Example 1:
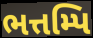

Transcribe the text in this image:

ભત્તમ્પિ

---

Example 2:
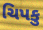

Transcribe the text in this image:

ચિપકુ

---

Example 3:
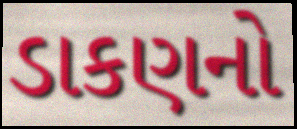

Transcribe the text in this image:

ડાકણનો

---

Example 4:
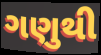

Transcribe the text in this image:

ગણુથી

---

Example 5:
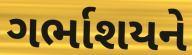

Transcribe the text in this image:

ગર્ભાશયને